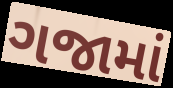
ગજામાં